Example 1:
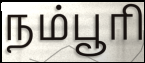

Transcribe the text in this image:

நம்பூரி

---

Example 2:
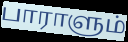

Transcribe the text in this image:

பாராளும்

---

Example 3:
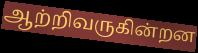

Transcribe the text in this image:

ஆற்றிவருகின்றன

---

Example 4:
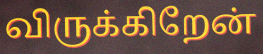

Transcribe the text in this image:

விருக்கிறேன்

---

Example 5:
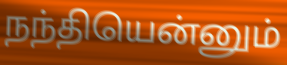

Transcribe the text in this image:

நந்தியென்னும்